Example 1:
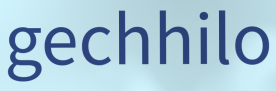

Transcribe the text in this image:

gechhilo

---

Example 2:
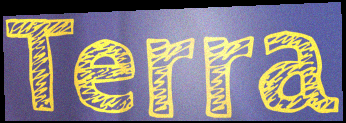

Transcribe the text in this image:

Terra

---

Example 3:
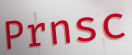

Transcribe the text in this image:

Prnsc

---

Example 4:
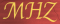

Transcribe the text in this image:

MHZ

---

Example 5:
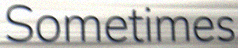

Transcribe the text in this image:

Sometimes